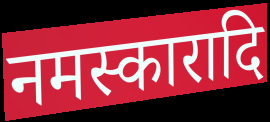
नमस्कारादि